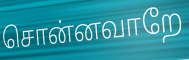
சொன்னவாறே